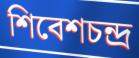
শিবেশচন্দ্র